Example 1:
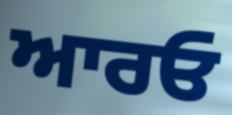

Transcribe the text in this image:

ਆਰਓ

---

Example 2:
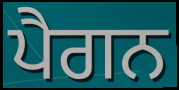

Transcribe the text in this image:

ਪੈਗਨ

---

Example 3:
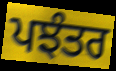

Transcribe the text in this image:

ਪਝੰਤਰ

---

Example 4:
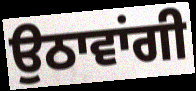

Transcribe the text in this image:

ਉਠਾਵਾਂਗੀ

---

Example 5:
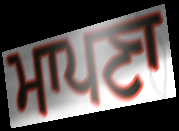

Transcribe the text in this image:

ਮਾਪਣਾ